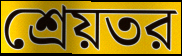
শ্রেয়তর